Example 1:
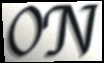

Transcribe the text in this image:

ON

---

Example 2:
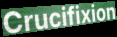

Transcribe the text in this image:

Crucifixion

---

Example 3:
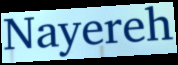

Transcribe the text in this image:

Nayereh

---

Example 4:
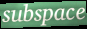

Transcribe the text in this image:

subspace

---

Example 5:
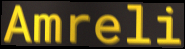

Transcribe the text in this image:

Amreli